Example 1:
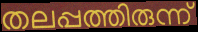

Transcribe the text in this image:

തലപ്പത്തിരുന്ന്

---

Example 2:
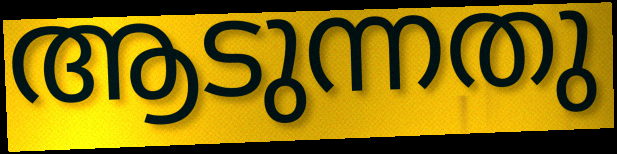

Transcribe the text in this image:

ആടുന്നതു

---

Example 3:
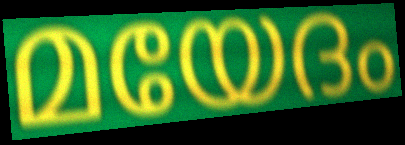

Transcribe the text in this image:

മയേദം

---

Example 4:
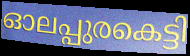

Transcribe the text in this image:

ഓലപ്പുരകെട്ടി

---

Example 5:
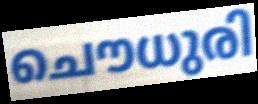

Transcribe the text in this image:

ചൌധുരി